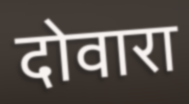
दोवारा